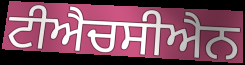
ਟੀਐਚਸੀਐਨ